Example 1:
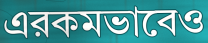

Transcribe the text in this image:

এরকমভাবেও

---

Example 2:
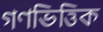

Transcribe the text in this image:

গণভিত্তিক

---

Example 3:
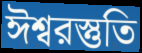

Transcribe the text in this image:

ঈশ্বরস্তুতি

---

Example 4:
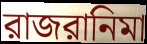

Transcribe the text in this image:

রাজরানিমা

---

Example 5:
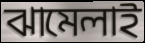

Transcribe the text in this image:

ঝামেলাই